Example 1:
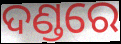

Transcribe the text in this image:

ଦଣ୍ଡରେ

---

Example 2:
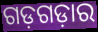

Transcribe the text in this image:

ଗଡ଼ଗଡ଼ାର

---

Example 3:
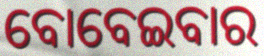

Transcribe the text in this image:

ବୋବେଇବାର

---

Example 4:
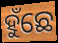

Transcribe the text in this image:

ହୁଁଛେ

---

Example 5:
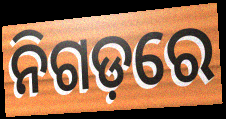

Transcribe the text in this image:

ନିଗଡ଼ରେ